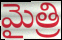
మైత్రి